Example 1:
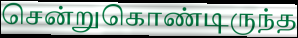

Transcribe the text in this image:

சென்றுகொண்டிருந்த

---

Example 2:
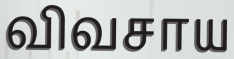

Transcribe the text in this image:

விவசாய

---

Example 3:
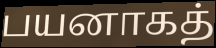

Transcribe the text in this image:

பயனாகத்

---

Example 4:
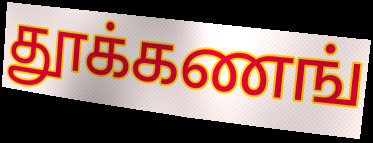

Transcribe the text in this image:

தூக்கணங்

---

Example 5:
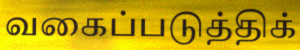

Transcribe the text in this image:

வகைப்படுத்திக்